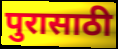
पुरासाठी